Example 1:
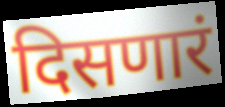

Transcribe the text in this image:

दिसणारं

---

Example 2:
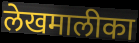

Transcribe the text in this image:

लेखमालीका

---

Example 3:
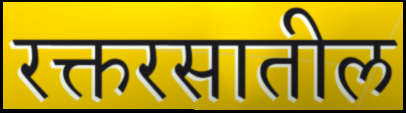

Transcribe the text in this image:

रक्तरसातील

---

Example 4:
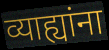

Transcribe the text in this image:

व्याह्यांना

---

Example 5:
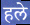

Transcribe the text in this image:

हले